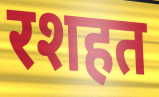
रशहत